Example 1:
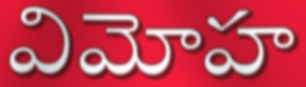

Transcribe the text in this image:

విమోహ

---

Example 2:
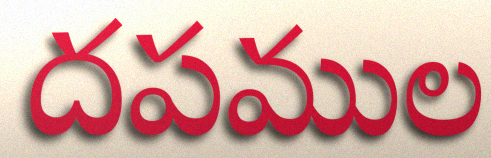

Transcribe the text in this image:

దపముల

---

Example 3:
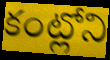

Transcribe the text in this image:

కంట్లోని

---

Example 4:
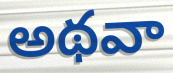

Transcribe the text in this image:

అథవా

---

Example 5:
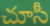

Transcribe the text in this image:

చూసీ